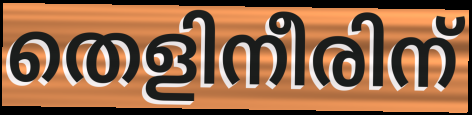
തെളിനീരിന്